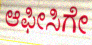
ಆಫೀಸಿಗೇ